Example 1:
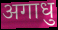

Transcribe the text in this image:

अगाधु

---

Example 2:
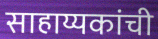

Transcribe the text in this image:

साहाय्यकांची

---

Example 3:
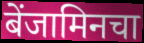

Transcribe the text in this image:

बेंजामिनचा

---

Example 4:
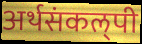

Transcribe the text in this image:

अर्थसंकल्पी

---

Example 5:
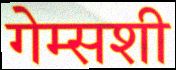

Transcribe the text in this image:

गेम्सशी